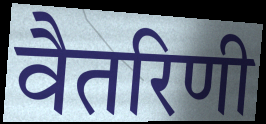
वैतरिणी